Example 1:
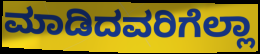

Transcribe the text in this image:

ಮಾಡಿದವರಿಗೆಲ್ಲಾ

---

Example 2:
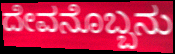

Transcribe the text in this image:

ದೇವನೊಬ್ಬನು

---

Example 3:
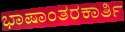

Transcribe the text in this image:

ಭಾಷಾಂತರಕಾರ್ತಿ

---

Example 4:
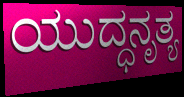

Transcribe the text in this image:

ಯುದ್ಧನೃತ್ಯ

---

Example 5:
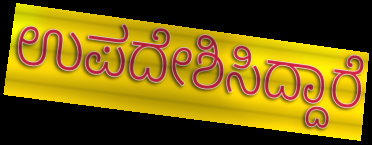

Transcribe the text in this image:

ಉಪದೇಶಿಸಿದ್ದಾರೆ